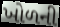
ખોળની